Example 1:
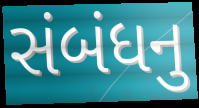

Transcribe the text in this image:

સંબંધનુ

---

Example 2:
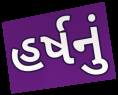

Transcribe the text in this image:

હર્ષનું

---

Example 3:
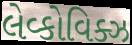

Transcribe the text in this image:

લેવ્કોવિક્ઝ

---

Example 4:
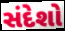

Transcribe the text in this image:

સંદેશો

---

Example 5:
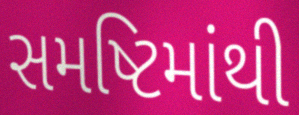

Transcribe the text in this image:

સમષ્ટિમાંથી